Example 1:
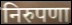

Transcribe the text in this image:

निरुपणा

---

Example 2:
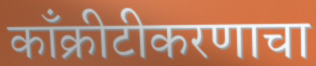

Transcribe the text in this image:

काँक्रीटीकरणाचा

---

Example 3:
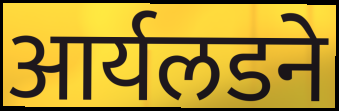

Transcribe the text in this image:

आर्यलडने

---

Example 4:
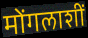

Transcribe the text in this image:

मोंगलाशीं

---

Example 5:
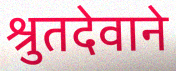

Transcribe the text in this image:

श्रुतदेवाने